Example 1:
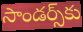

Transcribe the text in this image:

సాండర్స్‌కు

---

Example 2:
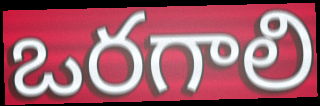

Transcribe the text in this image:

ఒరగాలి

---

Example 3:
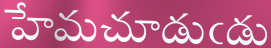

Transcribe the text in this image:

హేమచూడుఁడు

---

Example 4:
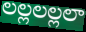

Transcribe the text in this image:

లల్లలల్లలా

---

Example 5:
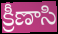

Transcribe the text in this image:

క్రీణాసి